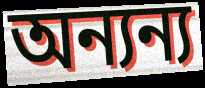
অন্যন্য